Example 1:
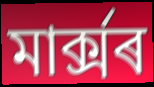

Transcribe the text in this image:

মাৰ্ক্সৰ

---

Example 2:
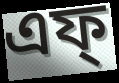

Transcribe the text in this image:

এফ্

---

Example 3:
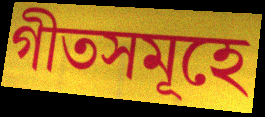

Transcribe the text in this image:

গীতসমূহে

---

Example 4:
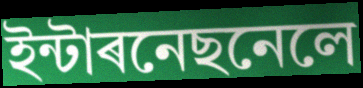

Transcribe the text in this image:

ইন্টাৰনেছনেলে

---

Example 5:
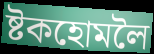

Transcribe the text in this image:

ষ্টকহোমলৈ